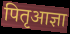
पितृआज्ञा